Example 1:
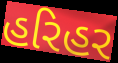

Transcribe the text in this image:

હરિહર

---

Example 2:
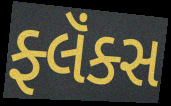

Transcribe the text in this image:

ફ્લૅંક્સ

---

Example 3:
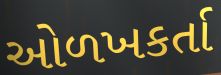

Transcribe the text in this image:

ઓળખકર્તા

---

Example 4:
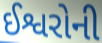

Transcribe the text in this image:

ઈશ્વરોની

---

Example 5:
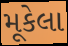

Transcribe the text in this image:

મૂકેલા